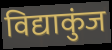
विद्याकुंज